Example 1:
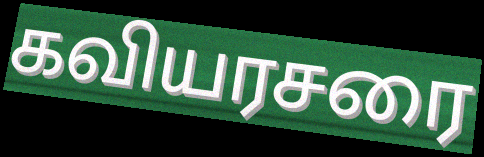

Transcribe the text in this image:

கவியரசரை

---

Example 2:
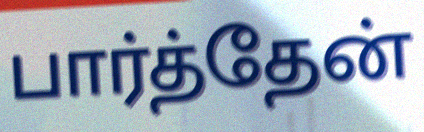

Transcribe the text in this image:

பார்த்தேன்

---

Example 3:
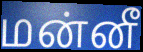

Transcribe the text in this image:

மன்னீ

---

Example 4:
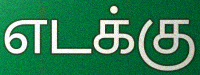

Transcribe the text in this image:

எடக்கு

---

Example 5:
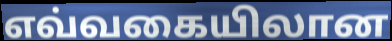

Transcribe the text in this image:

எவ்வகையிலான